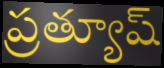
ప్రత్యూష్